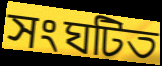
সংঘটিত